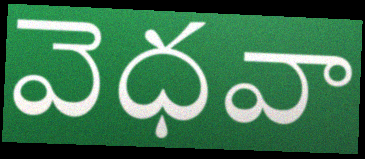
వెధవా